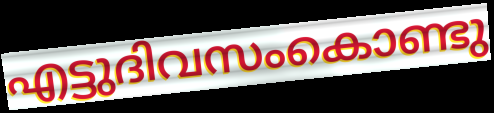
എട്ടുദിവസംകൊണ്ടു